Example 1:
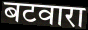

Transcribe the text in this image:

बटवारा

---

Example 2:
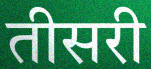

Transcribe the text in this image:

तीसरी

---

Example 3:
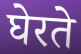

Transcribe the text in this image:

घेरते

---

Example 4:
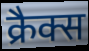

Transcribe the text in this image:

क्रैक्स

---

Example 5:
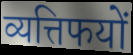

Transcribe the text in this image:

व्यत्तिफयों